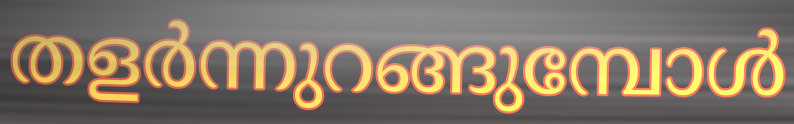
തളർന്നുറങ്ങുമ്പോൾ